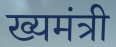
ख्यमंत्री